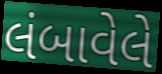
લંબાવેલે